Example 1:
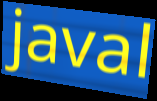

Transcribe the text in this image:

javal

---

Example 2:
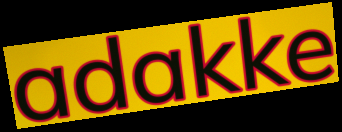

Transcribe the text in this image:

adakke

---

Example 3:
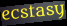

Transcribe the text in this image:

ecstasy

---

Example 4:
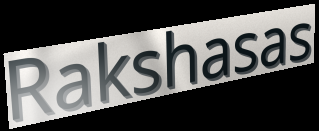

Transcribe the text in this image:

Rakshasas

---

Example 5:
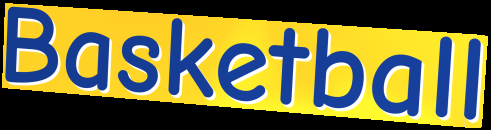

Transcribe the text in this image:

Basketball